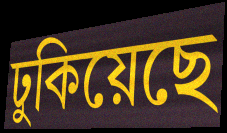
ঢুকিয়েছে